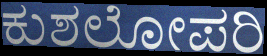
ಕುಶಲೋಪರಿ